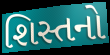
શિસ્તનો